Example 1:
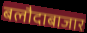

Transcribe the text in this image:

बलौदाबाजार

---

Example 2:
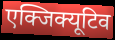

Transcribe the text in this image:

एक्जिक्यूटिव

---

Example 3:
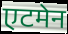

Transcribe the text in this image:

एटमेन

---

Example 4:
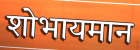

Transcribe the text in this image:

शोभायमान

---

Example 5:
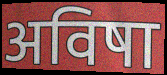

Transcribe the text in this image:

अविषा